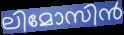
ലിമോസിൻ